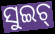
ସୁଇଚ୍